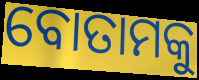
ବୋତାମକୁ